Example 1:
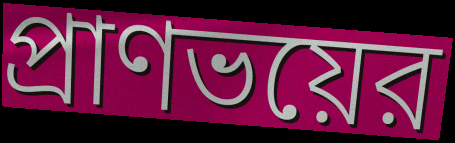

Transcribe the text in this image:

প্রাণভয়ের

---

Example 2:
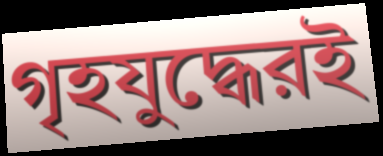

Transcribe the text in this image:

গৃহযুদ্ধেরই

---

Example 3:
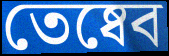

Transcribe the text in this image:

তেষ্বেব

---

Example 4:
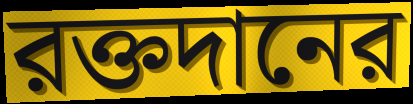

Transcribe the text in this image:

রক্তদানের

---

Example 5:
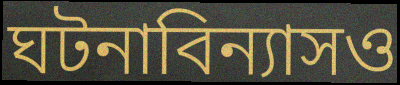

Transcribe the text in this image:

ঘটনাবিন্যাসও